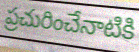
ప్రచురించేనాటికి